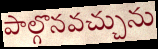
పాల్గొనవచ్చును